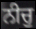
ਨੀਚੁ